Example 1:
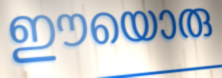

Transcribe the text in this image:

ഈയൊരു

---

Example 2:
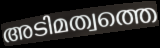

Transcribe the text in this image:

അടിമത്വത്തെ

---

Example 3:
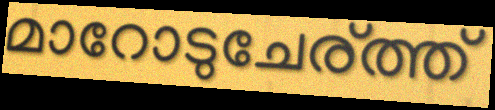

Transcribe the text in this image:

മാറോടുചേര്ത്ത്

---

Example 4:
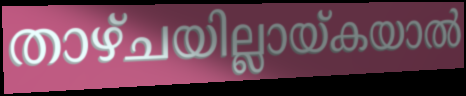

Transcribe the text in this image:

താഴ്ചയില്ലായ്കയാൽ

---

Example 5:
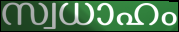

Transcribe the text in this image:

സ്വധാഹം